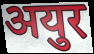
अयुर